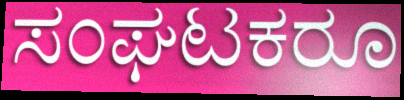
ಸಂಘಟಕರೂ